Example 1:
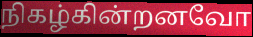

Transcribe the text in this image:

நிகழ்கின்றனவோ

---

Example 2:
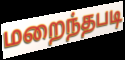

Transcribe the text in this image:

மறைந்தபடி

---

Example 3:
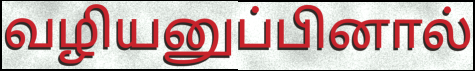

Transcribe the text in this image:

வழியனுப்பினால்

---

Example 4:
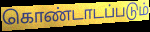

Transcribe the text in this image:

கொண்டாடப்படும்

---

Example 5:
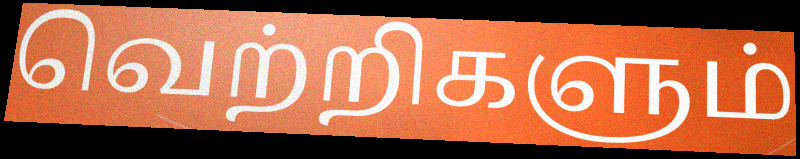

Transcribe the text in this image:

வெற்றிகளும்